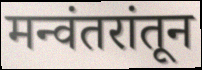
मन्वंतरांतून